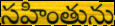
సహింతును